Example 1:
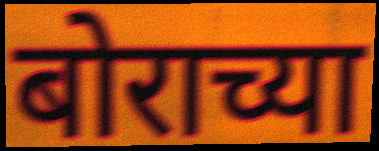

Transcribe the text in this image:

बोराच्या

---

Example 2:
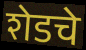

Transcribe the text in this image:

शेडचे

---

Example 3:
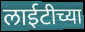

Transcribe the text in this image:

लाईटीच्या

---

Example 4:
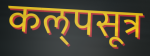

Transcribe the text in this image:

कल्पसूत्र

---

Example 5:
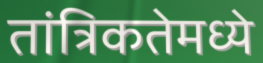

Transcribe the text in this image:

तांत्रिकतेमध्ये